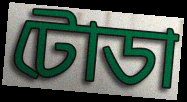
টোডা